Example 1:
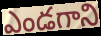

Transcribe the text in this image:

ఎండగాని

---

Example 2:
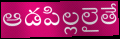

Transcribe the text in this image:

ఆడపిల్లలైతే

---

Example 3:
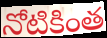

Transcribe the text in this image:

నోటికింత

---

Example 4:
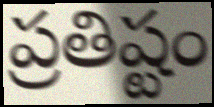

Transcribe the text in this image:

ప్రతిష్టం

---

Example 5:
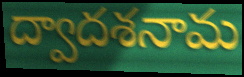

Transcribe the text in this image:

ద్వాదశనామ